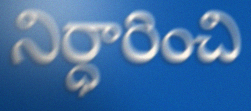
నిర్ధారించి